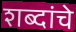
शब्दांचे